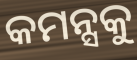
କମନ୍ସକୁ